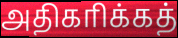
அதிகரிக்கத்